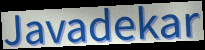
Javadekar